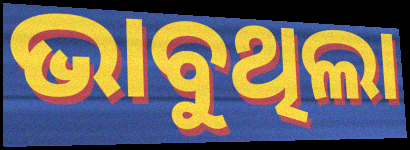
ଭାବୁଥିଲା